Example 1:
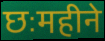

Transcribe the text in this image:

छःमहीने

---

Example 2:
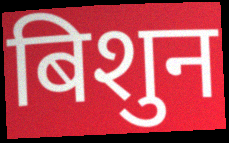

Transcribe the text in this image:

बिशुन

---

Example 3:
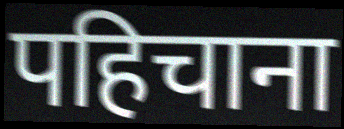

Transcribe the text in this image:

पहिचाना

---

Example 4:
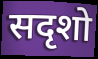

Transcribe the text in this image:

सदृशो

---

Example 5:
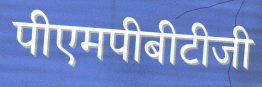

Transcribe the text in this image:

पीएमपीबीटीजी